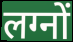
लग्नों